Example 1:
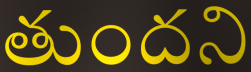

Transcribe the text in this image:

తుందని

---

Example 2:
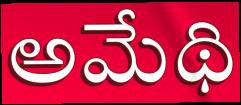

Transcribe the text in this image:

అమేథి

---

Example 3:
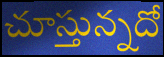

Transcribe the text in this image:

చూస్తున్నదో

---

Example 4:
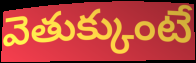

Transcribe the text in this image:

వెతుక్కుంటే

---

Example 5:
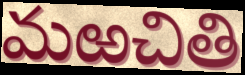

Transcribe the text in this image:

మఱచితి